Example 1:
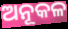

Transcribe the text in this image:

ଅନୂକଳ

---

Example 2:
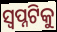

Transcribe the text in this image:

ସ୍ୱପ୍ନଟିକୁ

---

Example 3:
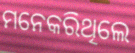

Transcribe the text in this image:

ମନେକରିଥିଲେ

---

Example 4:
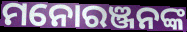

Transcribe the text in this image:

ମନୋରଞ୍ଜନଙ୍କ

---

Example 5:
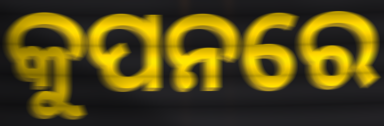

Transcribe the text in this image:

କୁପନରେ